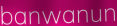
banwanun